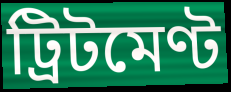
ট্ৰিটমেণ্ট